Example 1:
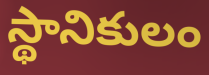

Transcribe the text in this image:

స్థానికులం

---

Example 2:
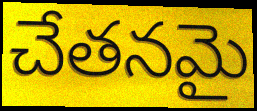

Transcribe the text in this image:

చేతనమై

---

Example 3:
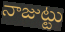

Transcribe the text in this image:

నాజుట్టు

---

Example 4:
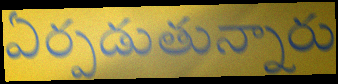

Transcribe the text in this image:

ఏర్పడుతున్నారు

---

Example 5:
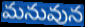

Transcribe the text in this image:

మనువున